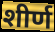
शीर्ण